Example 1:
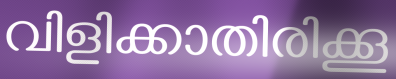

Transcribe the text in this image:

വിളിക്കാതിരിക്കൂ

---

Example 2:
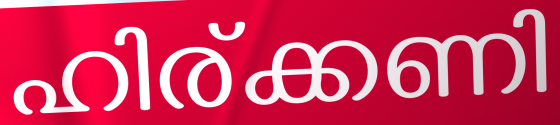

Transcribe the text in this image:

ഹിര്ക്കണി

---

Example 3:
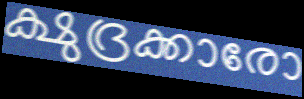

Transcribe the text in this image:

ക്ഷുദ്രക്കാരോ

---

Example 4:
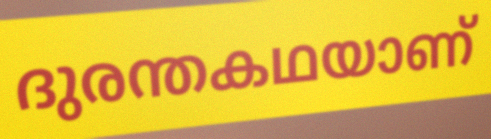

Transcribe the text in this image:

ദുരന്തകഥയാണ്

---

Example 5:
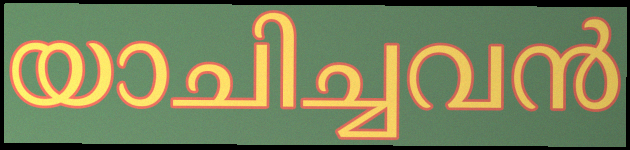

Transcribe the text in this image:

യാചിച്ചവൻ